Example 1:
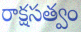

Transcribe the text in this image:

రాక్షసత్వం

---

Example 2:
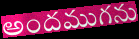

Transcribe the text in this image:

అందముగను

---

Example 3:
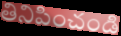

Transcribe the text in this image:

తినిపించండి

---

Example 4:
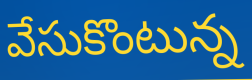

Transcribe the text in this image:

వేసుకొంటున్న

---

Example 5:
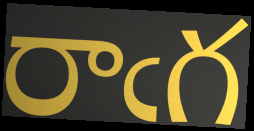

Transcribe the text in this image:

రాఁగ